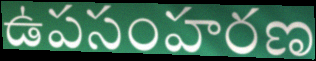
ఉపసంహరణ